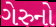
ગેરુનો